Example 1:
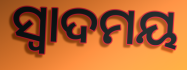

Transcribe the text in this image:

ସ୍ଵାଦମୟ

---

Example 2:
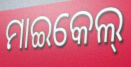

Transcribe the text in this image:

ମାଇକେଲ୍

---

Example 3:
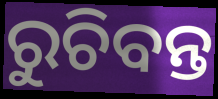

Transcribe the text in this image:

ରୁଚିବନ୍ତ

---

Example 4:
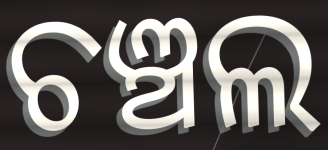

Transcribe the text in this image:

ଚଞ୍ଚଲ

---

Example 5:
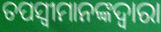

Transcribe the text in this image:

ତପସ୍ୱୀମାନଙ୍କଦ୍ୱାରା